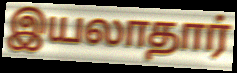
இயலாதார்